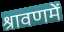
श्रावणमें